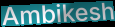
Ambikesh